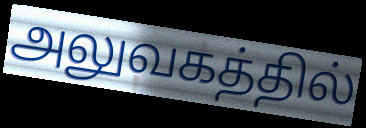
அலுவகத்தில்